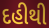
દહીથી